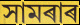
সামৰাৰ